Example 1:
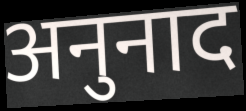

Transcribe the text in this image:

अनुनाद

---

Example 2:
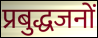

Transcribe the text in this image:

प्रबुद्धजनों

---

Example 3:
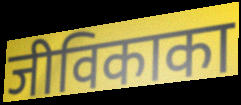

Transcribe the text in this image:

जीविकाका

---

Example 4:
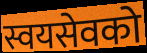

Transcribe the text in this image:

स्वयसेवको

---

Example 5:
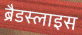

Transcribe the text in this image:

ब्रैडस्लाइस